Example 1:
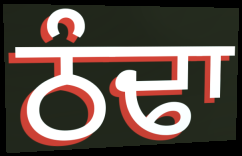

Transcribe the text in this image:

ਠੰਢਾ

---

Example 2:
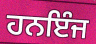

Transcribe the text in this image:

ਹਨਇੰਜ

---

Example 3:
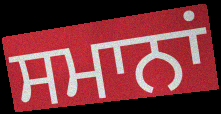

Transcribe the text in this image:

ਸਮਾਨਾਂ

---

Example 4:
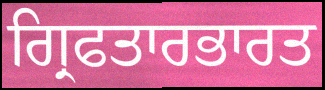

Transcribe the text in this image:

ਗ੍ਰਿਫਤਾਰਭਾਰਤ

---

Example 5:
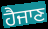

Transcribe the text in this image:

ਹੈਜਾਣ